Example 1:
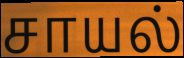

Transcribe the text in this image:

சாயல்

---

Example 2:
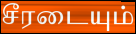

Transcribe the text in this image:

சீரடையும்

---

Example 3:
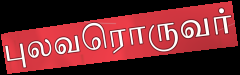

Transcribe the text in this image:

புலவரொருவர்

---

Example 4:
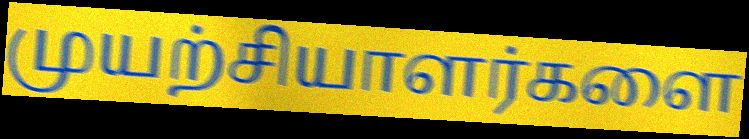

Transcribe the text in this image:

முயற்சியாளர்களை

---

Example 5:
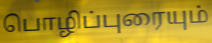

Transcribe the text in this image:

பொழிப்புரையும்